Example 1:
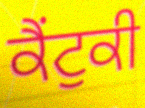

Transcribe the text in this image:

ਕੈਂਟੁਕੀ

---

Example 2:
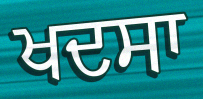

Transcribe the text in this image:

ਖਦਸਾ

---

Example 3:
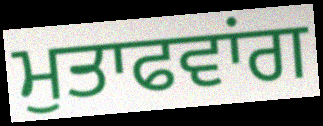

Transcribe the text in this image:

ਮੁਤਾਫਵਾਂਗ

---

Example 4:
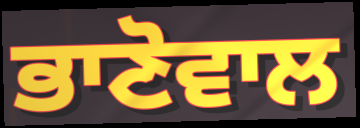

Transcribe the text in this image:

ਭਾਣੋਵਾਲ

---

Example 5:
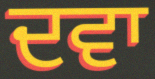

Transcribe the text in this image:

ਦਵਾ